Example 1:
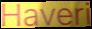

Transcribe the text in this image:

Haveri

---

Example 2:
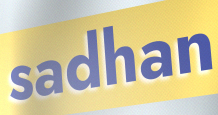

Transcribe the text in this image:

sadhan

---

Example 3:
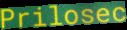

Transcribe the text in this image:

Prilosec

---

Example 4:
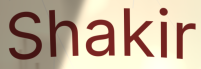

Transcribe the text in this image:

Shakir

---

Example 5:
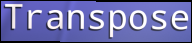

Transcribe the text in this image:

Transpose